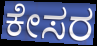
ಕೇಸರ